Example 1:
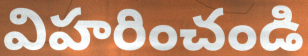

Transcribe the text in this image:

విహరించండి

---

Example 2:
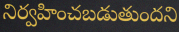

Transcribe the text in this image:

నిర్వహించబడుతుందని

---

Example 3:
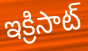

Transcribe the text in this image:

ఇక్రిసాట్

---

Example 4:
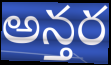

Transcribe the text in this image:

అన్తర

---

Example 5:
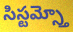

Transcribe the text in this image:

సిస్టమ్స్తో